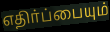
எதிர்ப்பையும்